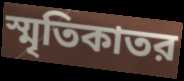
স্মৃতিকাতর